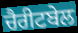
ਚੈਰੀਟਬੇਲ